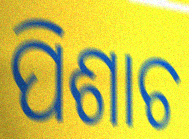
ପିଶାଚ